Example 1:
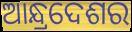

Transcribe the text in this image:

ଆନ୍ଧ୍ରଦେଶର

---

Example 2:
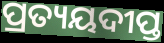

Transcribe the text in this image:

ପ୍ରତ୍ୟୟଦୀପ୍ତ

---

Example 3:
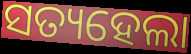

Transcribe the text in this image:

ସତ୍ୟହେଲା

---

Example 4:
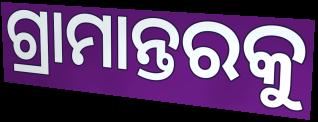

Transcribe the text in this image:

ଗ୍ରାମାନ୍ତରକୁ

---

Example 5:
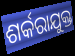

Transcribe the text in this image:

ଶର୍କରାଯୁକ୍ତ